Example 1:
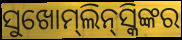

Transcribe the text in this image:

ସୁଖୋମ୍‍ଲିନ୍‍ସ୍କିଙ୍କର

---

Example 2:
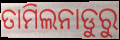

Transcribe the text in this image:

ତାମିଲନାଡୁରୁ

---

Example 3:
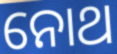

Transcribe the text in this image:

ନୋଥ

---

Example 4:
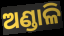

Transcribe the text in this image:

ଅଣ୍ଡାଳି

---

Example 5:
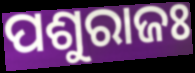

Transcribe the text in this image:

ପଶୁରାଜଃ